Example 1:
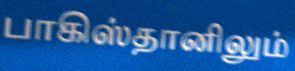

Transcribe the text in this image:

பாகிஸ்தானிலும்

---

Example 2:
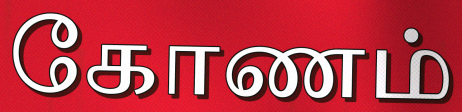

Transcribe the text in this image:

கோணம்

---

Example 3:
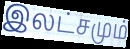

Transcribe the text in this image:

இலட்சமும்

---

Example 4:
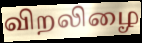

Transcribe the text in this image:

விறலிழை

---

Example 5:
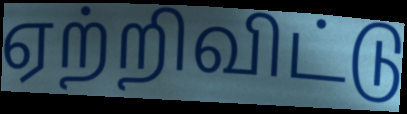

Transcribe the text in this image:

ஏற்றிவிட்டு